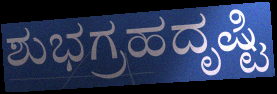
ಶುಭಗ್ರಹದೃಷ್ಟಿ